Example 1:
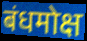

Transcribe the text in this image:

बंधमोक्ष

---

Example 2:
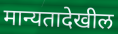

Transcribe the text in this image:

मान्यतादेखील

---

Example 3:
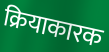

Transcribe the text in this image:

क्रियाकारक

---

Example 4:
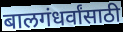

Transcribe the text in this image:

बालगंधर्वांसाठी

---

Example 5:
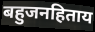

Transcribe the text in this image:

बहुजनहिताय